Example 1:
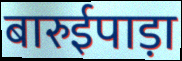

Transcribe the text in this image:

बारुईपाड़ा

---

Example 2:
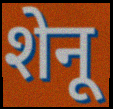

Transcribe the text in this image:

शेनू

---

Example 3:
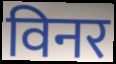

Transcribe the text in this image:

विनर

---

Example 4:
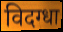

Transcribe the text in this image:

विदग्धा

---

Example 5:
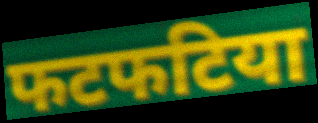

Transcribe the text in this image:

फटफटिया